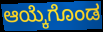
ಆಯ್ಕೆಗೊಂಡ